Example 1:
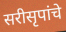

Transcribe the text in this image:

सरीसृपांचे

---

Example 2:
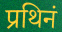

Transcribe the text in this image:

प्रथिनं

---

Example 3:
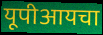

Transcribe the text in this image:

यूपीआयचा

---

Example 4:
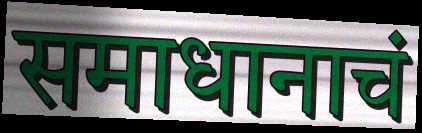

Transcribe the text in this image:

समाधानाचं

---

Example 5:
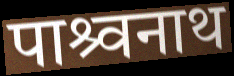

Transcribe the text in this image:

पाश्र्वनाथ